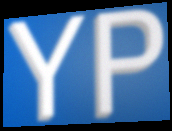
YP